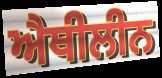
ਐਥੀਲੀਨ